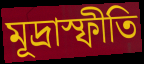
মূদ্রাস্ফীতি